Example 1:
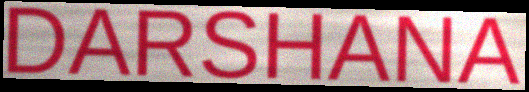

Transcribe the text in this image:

DARSHANA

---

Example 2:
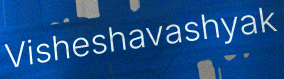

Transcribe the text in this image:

Visheshavashyak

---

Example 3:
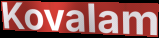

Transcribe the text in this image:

Kovalam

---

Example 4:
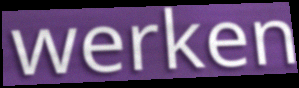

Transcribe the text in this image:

werken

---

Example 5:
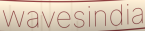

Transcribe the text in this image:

wavesindia